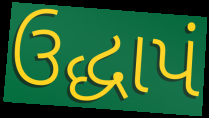
ઉદ્ધાપં